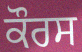
ਕੌਰਸ